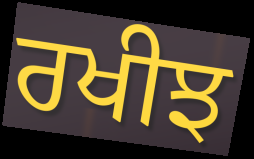
ਰਖੀਝ